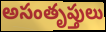
అసంతృప్తులు